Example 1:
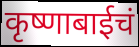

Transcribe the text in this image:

कृष्णाबाईचं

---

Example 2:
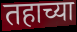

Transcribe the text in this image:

तहाच्या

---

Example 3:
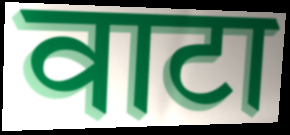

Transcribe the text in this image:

वाटा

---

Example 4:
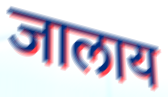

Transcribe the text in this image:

जालाय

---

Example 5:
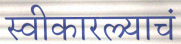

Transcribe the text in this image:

स्वीकारल्याचं